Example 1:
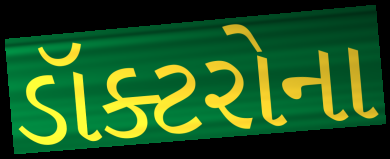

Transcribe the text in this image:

ડૉક્ટરોના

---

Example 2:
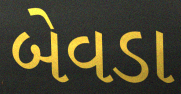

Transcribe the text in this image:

બેવડા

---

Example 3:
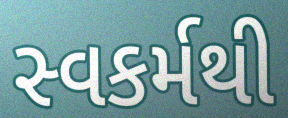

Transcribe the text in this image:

સ્વકર્મથી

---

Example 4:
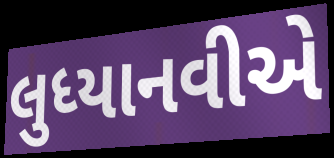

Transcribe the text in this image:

લુધ્યાનવીએ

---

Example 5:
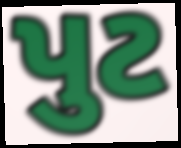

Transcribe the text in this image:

પુટ